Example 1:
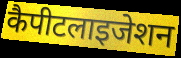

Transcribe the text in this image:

कैपीटलाइजेशन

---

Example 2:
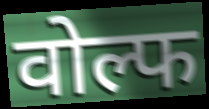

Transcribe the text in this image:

वोल्फ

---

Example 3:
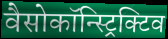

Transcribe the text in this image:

वैसोकॉन्स्ट्रिक्टिव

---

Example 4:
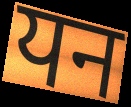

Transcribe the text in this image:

यन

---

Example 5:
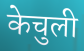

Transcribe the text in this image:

केचुली